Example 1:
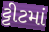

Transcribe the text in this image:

ટ્ટીટમાં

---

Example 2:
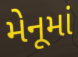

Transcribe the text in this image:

મેનૂમાં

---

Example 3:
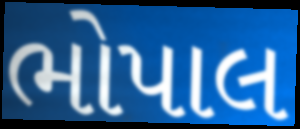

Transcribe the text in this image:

ભોપાલ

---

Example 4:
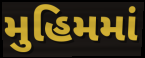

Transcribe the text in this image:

મુહિમમાં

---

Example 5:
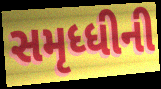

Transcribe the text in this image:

સમૃધ્ધીની